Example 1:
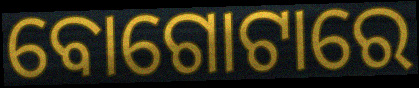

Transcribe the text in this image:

ବୋଗୋଟାରେ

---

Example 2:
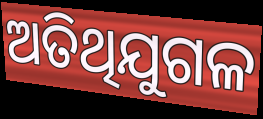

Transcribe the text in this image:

ଅତିଥିଯୁଗଳ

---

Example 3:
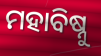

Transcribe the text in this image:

ମହାବିଷ୍ନୁ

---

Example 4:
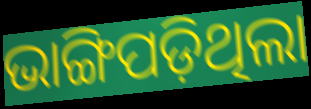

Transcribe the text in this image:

ଭାଙ୍ଗିପଡ଼ିଥିଲା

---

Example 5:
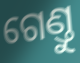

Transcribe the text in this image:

ଗେଣ୍ତୁ